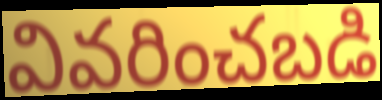
వివరించబడి